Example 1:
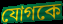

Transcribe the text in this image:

যোগকে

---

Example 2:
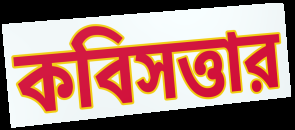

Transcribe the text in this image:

কবিসত্তার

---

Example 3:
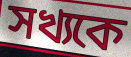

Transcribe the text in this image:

সখ্যকে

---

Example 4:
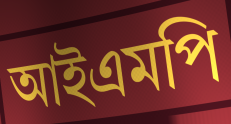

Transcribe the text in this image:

আইএমপি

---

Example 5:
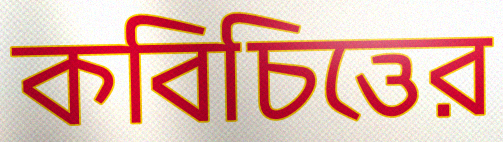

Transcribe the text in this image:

কবিচিত্তের